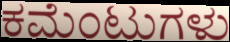
ಕಮೆಂಟುಗಳು